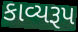
કાવ્યરૂપ